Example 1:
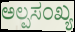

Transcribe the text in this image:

ಅಲ್ಪಸಂಖ್ಯ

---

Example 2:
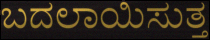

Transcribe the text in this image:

ಬದಲಾಯಿಸುತ್ತ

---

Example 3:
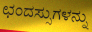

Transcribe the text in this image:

ಛಂದಸ್ಸುಗಳನ್ನು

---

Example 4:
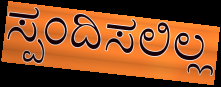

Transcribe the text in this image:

ಸ್ಪಂದಿಸಲಿಲ್ಲ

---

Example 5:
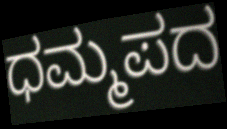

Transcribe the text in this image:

ಧಮ್ಮಪದ